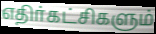
எதிர்கட்சிகளும்